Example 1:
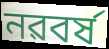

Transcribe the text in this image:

নৱবৰ্ষ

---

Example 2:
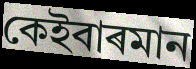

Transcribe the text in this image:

কেইবাৰমান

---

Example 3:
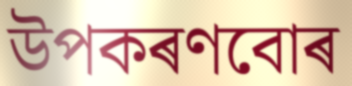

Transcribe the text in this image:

উপকৰণবোৰ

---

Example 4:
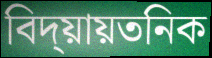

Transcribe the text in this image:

বিদ্য়ায়তনিক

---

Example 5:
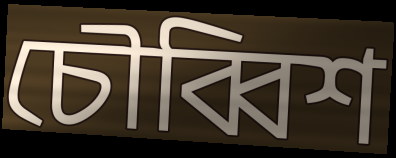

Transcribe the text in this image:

চৌব্বিশ